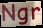
Ngr